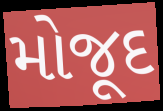
મોજૂદ